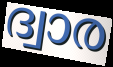
ദ്വാര